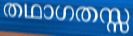
തഥാഗതസ്സ